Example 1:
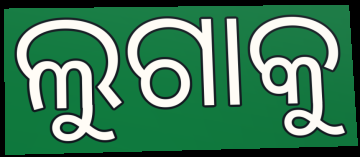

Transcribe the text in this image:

ଲୁଗାକୁ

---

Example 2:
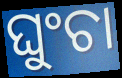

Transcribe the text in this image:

ଘୁଂଚା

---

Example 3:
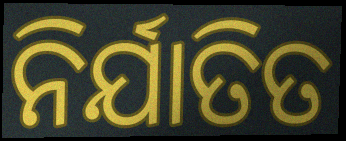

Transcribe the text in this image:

ନିର୍ଯାତିତ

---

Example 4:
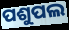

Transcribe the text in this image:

ପଶୁପଲ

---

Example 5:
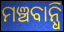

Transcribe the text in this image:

ମଞ୍ଚବାନ୍ଧି